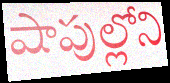
షాపుల్లోని